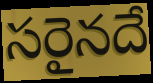
సరైనదే